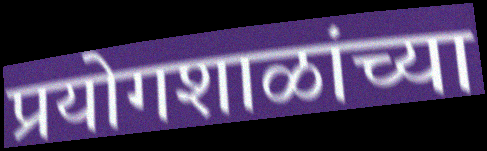
प्रयोगशाळांच्या